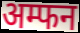
अम्फन